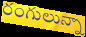
రంగులున్నా